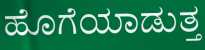
ಹೊಗೆಯಾಡುತ್ತ